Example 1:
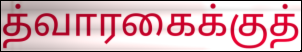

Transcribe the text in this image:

த்வாரகைக்குத்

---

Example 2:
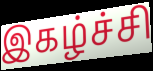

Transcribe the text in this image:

இகழ்ச்சி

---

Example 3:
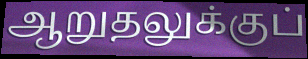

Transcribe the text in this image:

ஆறுதலுக்குப்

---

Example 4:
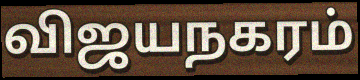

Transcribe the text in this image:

விஜயநகரம்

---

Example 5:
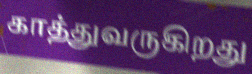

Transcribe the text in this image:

காத்துவருகிறது